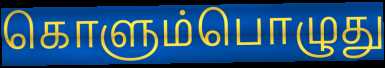
கொளும்பொழுது